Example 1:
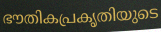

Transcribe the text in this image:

ഭൗതികപ്രകൃതിയുടെ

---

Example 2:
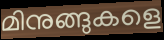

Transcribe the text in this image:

മിനുങ്ങുകളെ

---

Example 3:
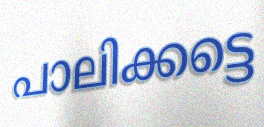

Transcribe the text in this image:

പാലിക്കട്ടെ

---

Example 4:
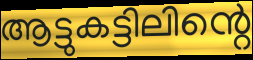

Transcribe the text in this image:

ആട്ടുകട്ടിലിന്റെ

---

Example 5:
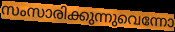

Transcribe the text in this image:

സംസാരിക്കുന്നുവെന്നോ